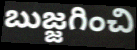
బుజ్జగించి